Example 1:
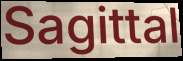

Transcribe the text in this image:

Sagittal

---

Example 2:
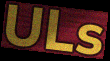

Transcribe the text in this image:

ULs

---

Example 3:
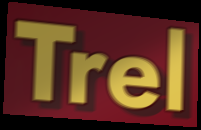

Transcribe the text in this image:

Trel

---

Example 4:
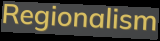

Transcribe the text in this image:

Regionalism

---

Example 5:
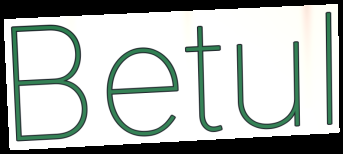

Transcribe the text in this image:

Betul